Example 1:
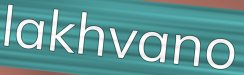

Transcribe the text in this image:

lakhvano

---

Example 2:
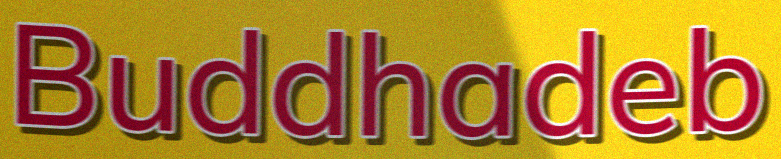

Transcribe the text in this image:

Buddhadeb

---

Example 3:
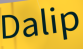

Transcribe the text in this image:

Dalip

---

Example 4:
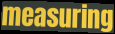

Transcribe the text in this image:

measuring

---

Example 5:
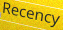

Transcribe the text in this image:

Recency